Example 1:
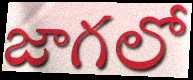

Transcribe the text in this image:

జాగలో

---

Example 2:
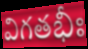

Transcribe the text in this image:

విగతభీః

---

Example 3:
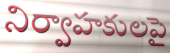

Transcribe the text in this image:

నిర్వాహకులపై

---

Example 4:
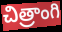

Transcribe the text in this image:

చిత్రాంగి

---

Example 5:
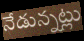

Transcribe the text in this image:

నేడున్నట్లు